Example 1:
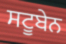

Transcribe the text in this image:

ਸਟੂਬੇਨ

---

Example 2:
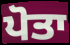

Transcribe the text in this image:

ਪੋਤਾ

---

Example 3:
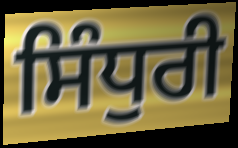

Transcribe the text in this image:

ਸਿੰਧੁਰੀ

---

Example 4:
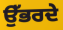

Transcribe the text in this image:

ਉੱਭਰਦੇ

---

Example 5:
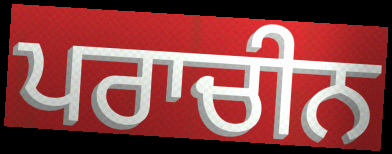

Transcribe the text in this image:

ਪਰਾਚੀਨ